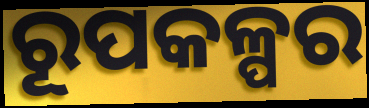
ରୂପକଳ୍ପର